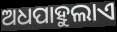
ଅଧପାହୁଲାଏ